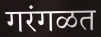
गरंगळत